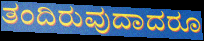
ತಂದಿರುವುದಾದರೂ